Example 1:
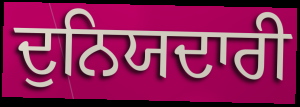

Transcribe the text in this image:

ਦੁਨਿਯਦਾਰੀ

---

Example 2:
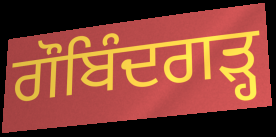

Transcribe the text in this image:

ਗੌਬਿੰਦਗੜ੍ਹ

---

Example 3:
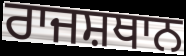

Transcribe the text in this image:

ਰਾਜਸ਼ਥਾਨ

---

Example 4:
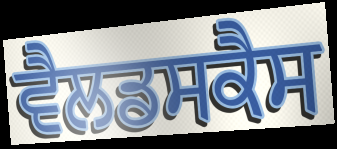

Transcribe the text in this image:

ਵੈਲਡਸਕੈਸ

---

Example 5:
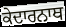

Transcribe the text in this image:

ਕੇਦਾਰਨਾਥ